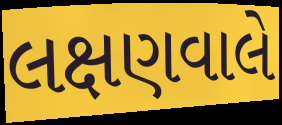
લક્ષણવાલે